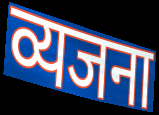
व्यजना